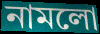
নামলো